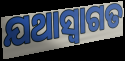
ଯଥାସ୍ଵାଗତ